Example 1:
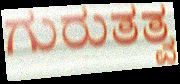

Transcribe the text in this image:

ಗುರುತತ್ವ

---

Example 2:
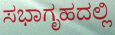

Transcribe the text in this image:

ಸಭಾಗೃಹದಲ್ಲಿ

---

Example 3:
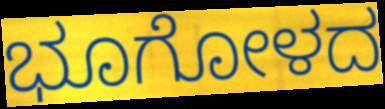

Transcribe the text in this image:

ಭೂಗೋಳದ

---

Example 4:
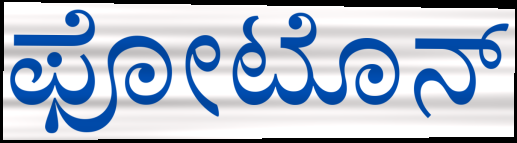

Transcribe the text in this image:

ಫೋಟೊನ್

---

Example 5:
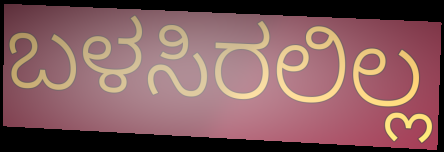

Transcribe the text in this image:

ಬಳಸಿರಲಿಲ್ಲ